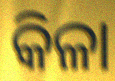
କିଳା